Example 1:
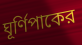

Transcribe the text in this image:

ঘূর্ণিপাকের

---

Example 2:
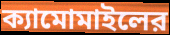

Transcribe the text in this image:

ক্যামোমাইলের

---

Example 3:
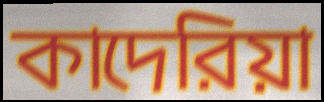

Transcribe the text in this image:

কাদেরিয়া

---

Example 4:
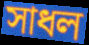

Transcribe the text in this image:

সাধল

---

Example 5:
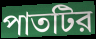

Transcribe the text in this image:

পাতটির